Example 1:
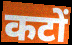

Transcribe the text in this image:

कटों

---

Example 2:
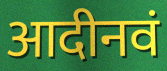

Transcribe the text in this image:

आदीनवं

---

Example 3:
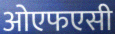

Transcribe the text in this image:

ओएफएसी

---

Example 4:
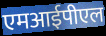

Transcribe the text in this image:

एमआईपीएल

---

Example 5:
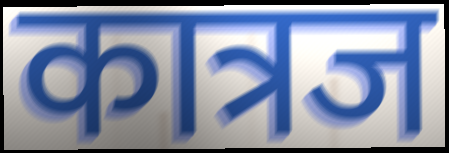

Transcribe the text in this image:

कात्रज